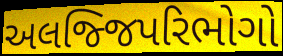
અલજ્જિપરિભોગો